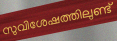
സുവിശേഷത്തിലുണ്ട്